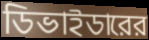
ডিভাইডারের